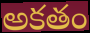
అకతం